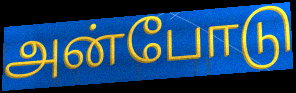
அன்போடு